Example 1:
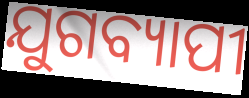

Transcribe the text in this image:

ଯୁଗବ୍ୟାପୀ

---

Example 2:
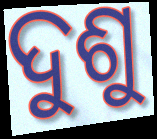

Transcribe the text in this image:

ଦୁଶୁ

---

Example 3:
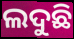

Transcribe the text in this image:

ଲଦୁଛି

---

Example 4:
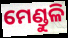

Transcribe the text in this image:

ମେଣ୍ଡୁଳି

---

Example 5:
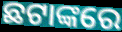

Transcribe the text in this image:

ଛଟାଙ୍କରେ